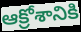
ఆక్రోశానికి